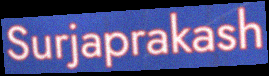
Surjaprakash